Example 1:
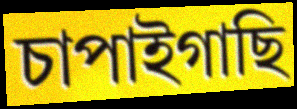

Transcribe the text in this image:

চাপাইগাছি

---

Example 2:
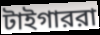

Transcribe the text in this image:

টাইগাররা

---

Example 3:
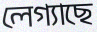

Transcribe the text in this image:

লেগ্যাছে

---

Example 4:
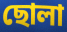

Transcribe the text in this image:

ছোলা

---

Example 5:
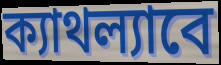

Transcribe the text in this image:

ক্যাথল্যাবে